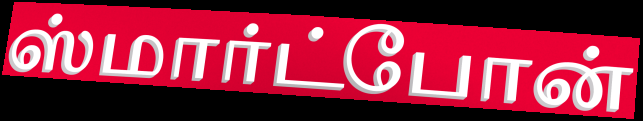
ஸ்மார்ட்போன்